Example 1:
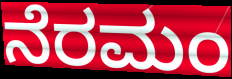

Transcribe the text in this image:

ನೆರಮಂ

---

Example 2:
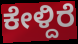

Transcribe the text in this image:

ಕೇಳ್ದಿರೆ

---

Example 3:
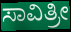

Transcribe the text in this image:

ಸಾವಿತ್ರೀ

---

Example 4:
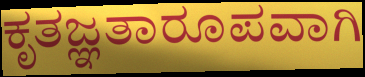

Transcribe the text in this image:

ಕೃತಜ್ಞತಾರೂಪವಾಗಿ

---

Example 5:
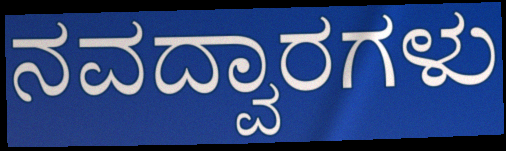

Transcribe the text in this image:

ನವದ್ವಾರಗಳು